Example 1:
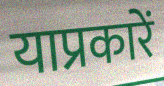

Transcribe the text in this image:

याप्रकारें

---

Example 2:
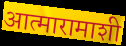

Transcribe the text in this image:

आत्मारामाशी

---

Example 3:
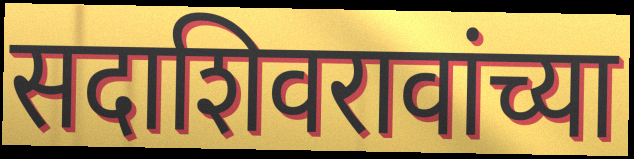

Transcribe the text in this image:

सदाशिवरावांच्या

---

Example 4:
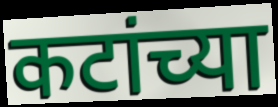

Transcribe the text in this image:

कटांच्या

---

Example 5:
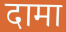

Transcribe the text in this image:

दामा